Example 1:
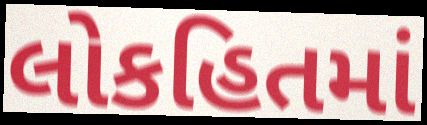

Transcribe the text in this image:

લોકહિતમાં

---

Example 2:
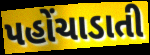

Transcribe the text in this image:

પહોંચાડાતી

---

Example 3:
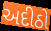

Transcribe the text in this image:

અદીઠો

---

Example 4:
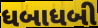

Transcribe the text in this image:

ધબાધબી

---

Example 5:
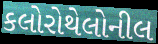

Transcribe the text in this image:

કલોરોથેલોનીલ